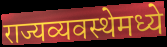
राज्यव्यवस्थेमध्ये